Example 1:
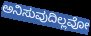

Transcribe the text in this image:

ಅನಿಸುವುದಿಲ್ಲವೋ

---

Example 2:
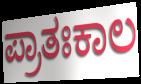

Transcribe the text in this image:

ಪ್ರಾತಃಕಾಲ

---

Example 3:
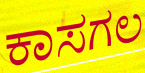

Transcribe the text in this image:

ಕಾಸಗಲ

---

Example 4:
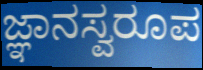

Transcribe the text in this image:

ಜ್ಞಾನಸ್ವರೂಪ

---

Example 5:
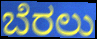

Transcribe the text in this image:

ಬೆರಲು